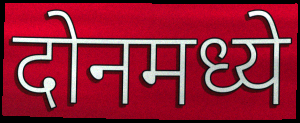
दोनमध्ये